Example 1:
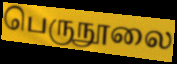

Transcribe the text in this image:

பெருநூலை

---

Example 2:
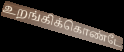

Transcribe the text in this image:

உறங்கிக்கொண்டே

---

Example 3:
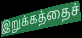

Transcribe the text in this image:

இறுக்கத்தைச்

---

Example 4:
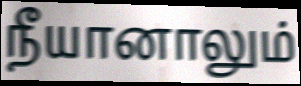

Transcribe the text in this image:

நீயானாலும்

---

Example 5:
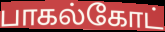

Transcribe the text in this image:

பாகல்கோட்